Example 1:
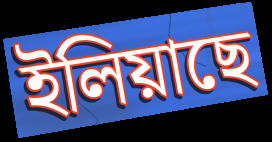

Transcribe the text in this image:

ইলিয়াছে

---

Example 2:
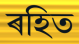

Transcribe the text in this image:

ৰহিত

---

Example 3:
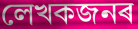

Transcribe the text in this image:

লেখকজনৰ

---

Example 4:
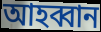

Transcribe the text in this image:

আহব্বান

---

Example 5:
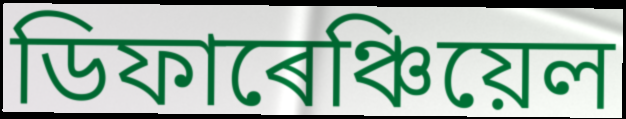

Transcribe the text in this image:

ডিফাৰেঞ্চিয়েল